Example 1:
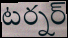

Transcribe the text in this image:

టర్నర్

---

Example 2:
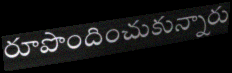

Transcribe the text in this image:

రూపొందించుకున్నారు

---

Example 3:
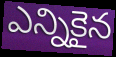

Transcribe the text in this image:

ఎన్నికైన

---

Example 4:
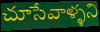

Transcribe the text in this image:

చూసేవాళ్ళని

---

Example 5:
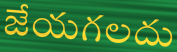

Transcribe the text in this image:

జేయగలదు